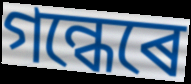
গন্ধেৰে